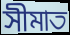
সীমাত